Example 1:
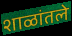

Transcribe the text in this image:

शाळांतले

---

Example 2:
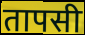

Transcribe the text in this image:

तापसी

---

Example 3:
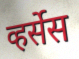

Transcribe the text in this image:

व्हर्सेस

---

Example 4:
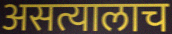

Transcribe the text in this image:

असत्यालाच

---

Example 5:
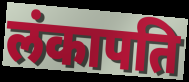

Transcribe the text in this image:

लंकापति